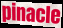
pinacle